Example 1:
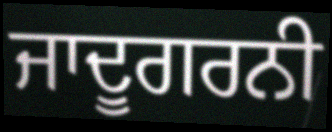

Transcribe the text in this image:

ਜਾਦੂਗਰਨੀ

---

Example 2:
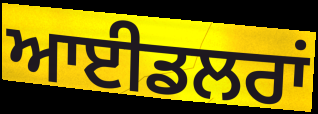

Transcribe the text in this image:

ਆਈਡਲਰਾਂ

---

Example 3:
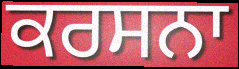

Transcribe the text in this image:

ਕਰਸਨਾ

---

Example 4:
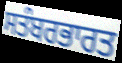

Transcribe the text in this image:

ਸਤੰਬਰਭਾਰਤ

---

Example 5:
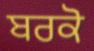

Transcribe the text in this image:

ਬਰਕੋ